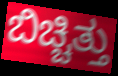
ಬಿಚ್ಚಿತ್ತು